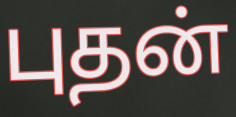
புதன்